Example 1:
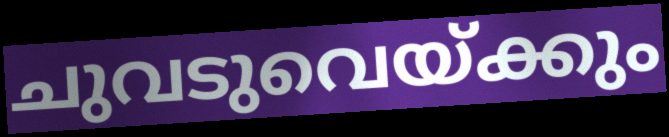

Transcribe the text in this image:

ചുവടുവെയ്ക്കും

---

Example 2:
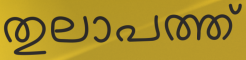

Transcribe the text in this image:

തുലാപത്ത്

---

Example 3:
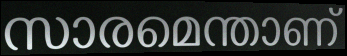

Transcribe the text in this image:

സാരമെന്താണ്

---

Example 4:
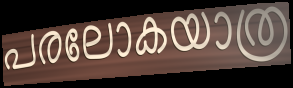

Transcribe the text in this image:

പരലോകയാത്ര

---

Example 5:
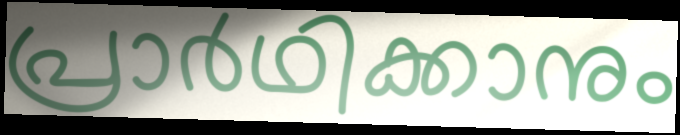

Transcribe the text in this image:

പ്രാർഥിക്കാനും